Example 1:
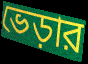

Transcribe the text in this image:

ভেড়ার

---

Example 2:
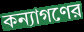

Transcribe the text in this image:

কন্যাগণের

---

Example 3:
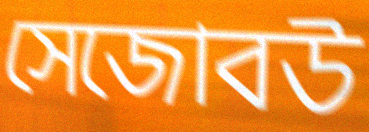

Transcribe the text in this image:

সেজোবউ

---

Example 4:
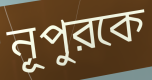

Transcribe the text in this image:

নূপুরকে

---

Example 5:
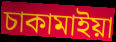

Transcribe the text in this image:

চাকামাইয়া